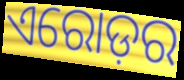
ଏରୋଡ଼ର